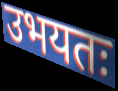
उभयतः